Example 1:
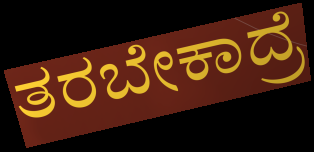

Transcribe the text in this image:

ತರಬೇಕಾದ್ರೆ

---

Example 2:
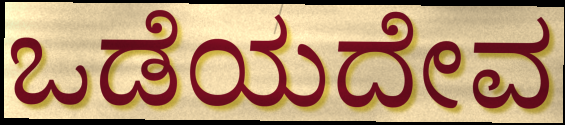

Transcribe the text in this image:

ಒಡೆಯದೇವ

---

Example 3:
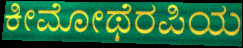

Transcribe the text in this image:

ಕೀಮೋಥೆರಪಿಯ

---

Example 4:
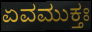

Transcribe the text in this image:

ಏವಮುಕ್ತಃ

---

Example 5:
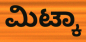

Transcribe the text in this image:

ಮಿಟ್ಕಾ